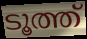
ടൂത്ത്